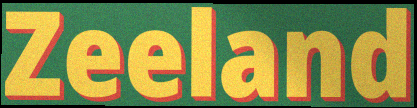
Zeeland